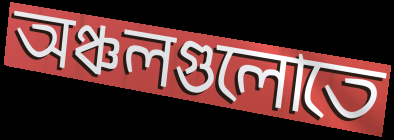
অঞ্চলগুলোতে